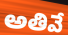
అతివే